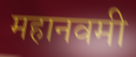
महानवमी